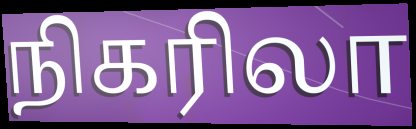
நிகரிலா